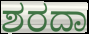
ಶರದಾ